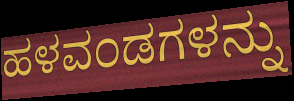
ಹಳವಂಡಗಳನ್ನು